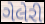
ગેલેરી